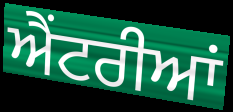
ਐਂਟਰੀਆਂ